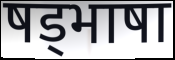
षड्भाषा